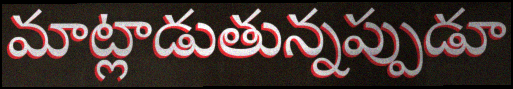
మాట్లాడుతున్నప్పుడూ